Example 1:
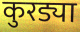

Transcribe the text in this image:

कुरड्या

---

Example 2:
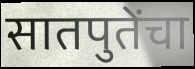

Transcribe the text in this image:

सातपुतेंचा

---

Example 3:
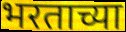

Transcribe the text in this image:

भरताच्या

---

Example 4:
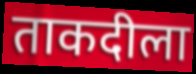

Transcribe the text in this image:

ताकदीला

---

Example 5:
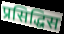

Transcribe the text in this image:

प्रसिद्धिस